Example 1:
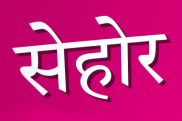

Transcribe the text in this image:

सेहोर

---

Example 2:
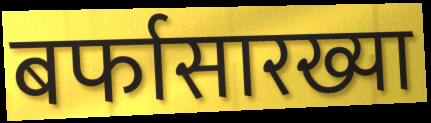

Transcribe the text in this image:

बर्फासारख्या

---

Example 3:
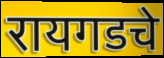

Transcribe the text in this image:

रायगडचे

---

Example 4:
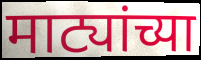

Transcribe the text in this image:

माट्यांच्या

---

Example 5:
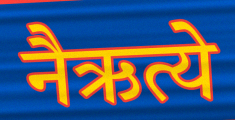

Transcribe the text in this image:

नैऋत्ये